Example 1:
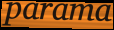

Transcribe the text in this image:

parama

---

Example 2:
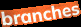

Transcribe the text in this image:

branches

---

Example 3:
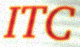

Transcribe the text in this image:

ITC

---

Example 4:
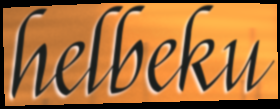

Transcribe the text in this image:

helbeku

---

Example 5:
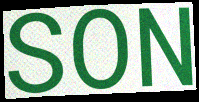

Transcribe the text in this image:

SON